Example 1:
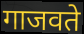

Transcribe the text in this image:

गाजवते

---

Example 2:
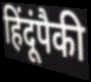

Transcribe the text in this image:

हिंदूंपैकी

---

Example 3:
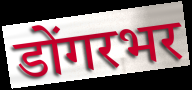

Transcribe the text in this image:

डोंगरभर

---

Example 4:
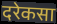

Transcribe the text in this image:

दरेकसा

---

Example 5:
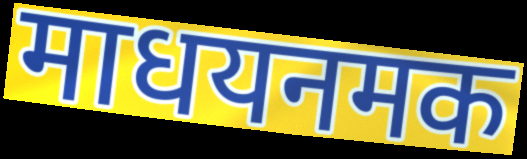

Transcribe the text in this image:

माधयनमक